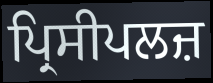
ਪ੍ਰਿਸੀਪਲਜ਼